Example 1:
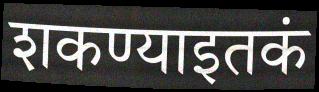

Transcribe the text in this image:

शकण्याइतकं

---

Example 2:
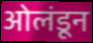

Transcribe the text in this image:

ओलंडून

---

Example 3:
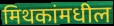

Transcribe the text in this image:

मिथकांमधील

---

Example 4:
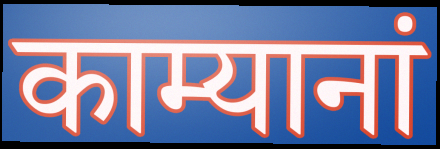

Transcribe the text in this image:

काम्यानां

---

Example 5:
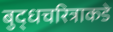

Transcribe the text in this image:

बुद्धचरित्राकडे